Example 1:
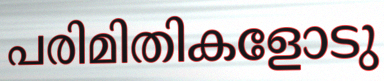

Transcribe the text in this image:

പരിമിതികളോടു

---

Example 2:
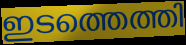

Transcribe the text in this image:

ഇടത്തെത്തി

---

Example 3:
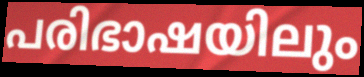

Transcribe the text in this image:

പരിഭാഷയിലും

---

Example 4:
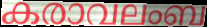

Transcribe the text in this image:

കരാവലംബ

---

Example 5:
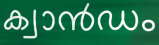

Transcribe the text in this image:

ക്വാൻഡം